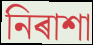
নিৰাশা